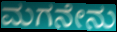
ಮಗನೇನು